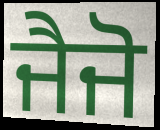
ਜੈਜੋ